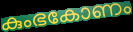
കുംഭകോണം